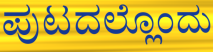
ಪುಟದಲ್ಲೊಂದು